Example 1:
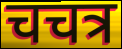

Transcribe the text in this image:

चचत्र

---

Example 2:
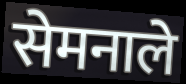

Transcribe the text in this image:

सेमनाले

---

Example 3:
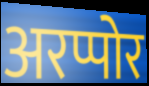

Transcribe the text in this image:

अरप्पोर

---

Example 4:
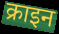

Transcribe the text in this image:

क्राइन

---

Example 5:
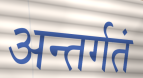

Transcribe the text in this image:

अन्तर्गतं